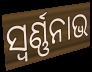
ସ୍ବର୍ଣ୍ଣନାଭ